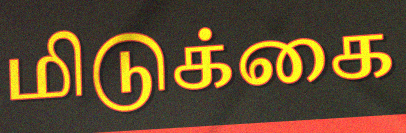
மிடுக்கை